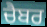
ਚੈਬਰ